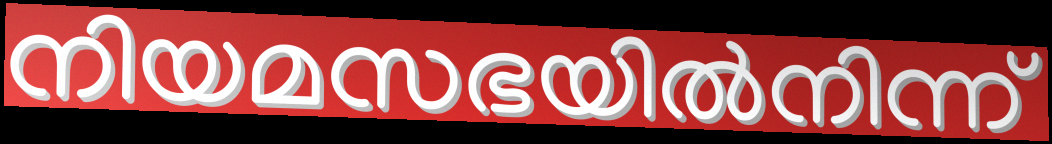
നിയമസഭയിൽനിന്ന്